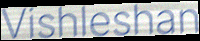
Vishleshan